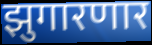
झुगारणार